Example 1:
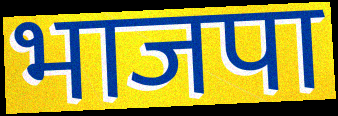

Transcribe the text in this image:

भाजपा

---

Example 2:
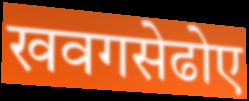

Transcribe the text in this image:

खवगसेढोए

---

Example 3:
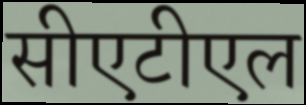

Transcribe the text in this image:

सीएटीएल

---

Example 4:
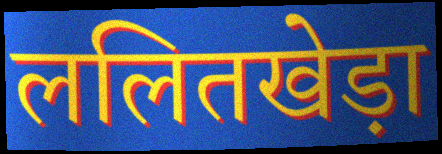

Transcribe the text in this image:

ललितखेड़ा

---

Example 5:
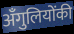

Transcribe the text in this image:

अँगुलियोंकी